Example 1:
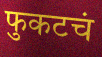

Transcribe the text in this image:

फुकटचं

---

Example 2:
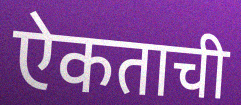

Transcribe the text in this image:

ऐकताची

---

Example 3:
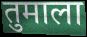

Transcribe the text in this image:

तुमाला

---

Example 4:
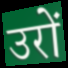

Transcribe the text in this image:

उरों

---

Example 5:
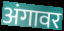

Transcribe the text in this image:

अंगावर